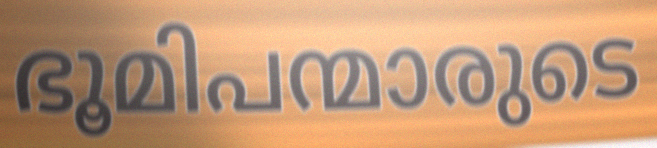
ഭൂമിപന്മാരുടെ